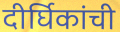
दीर्घिकांची